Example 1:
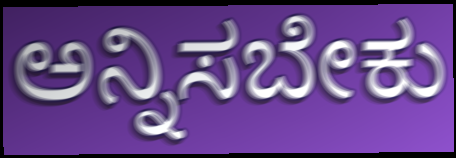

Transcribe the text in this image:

ಅನ್ನಿಸಬೇಕು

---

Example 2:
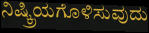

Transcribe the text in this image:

ನಿಷ್ಕ್ರಿಯಗೊಳಿಸುವುದು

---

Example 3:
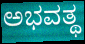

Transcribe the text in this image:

ಅಭವತ್ಥ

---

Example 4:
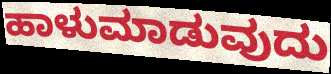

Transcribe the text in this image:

ಹಾಳುಮಾಡುವುದು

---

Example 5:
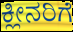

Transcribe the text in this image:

ಕ್ಲೀನರಿಗೆ